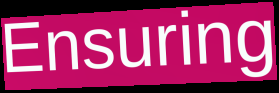
Ensuring